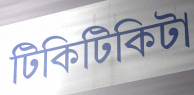
টিকিটিকিটা